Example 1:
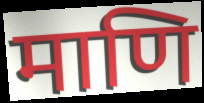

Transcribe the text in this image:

माणि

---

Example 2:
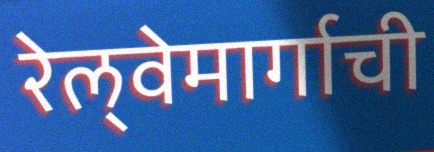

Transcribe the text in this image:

रेल्वेमार्गाची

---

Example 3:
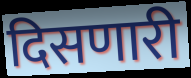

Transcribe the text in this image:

दिसणारी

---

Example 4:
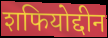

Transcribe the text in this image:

शफियोद्दीन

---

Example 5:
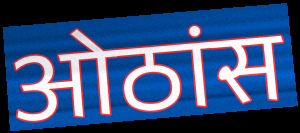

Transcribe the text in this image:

ओठांस